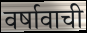
वर्षावाची